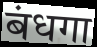
बंधगा